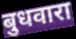
बुधवारा